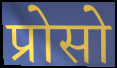
प्रोसो